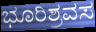
ಭೂರಿಶ್ರವಸ